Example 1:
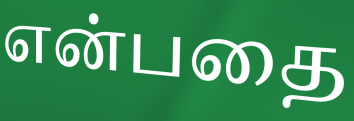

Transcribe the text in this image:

என்பதை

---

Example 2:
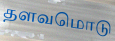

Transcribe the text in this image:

தளவமொடு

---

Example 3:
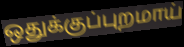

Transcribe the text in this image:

ஒதுக்குப்புறமாய்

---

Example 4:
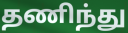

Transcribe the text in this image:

தணிந்து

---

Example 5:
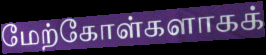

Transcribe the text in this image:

மேற்கோள்களாகக்